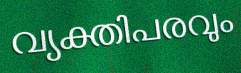
വ്യക്തിപരവും